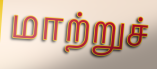
மாற்றுச்